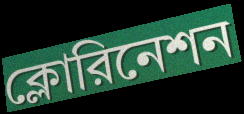
ক্লোরিনেশন